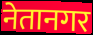
नेतानगर